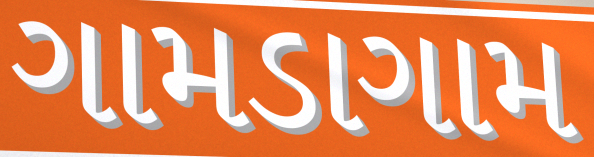
ગામડાગામ